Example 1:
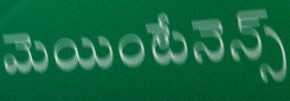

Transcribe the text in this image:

మెయింటేనెన్స్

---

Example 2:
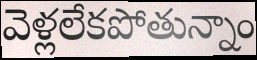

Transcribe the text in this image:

వెళ్లలేకపోతున్నాం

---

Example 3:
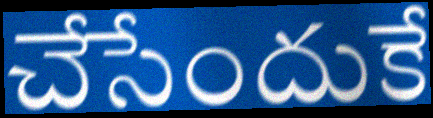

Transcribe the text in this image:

చేసేందుకే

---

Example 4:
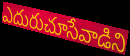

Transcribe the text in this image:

ఎదురుచూసేవాడిని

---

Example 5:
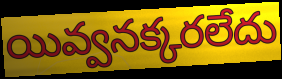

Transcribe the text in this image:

యివ్వనక్కరలేదు